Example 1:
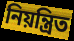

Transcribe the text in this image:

নিয়ন্ত্ৰিত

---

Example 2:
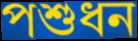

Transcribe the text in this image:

পশুধন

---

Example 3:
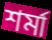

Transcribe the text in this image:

শৰ্মা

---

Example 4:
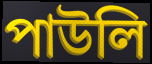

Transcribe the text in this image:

পাউলি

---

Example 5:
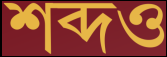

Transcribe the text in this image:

শব্দও